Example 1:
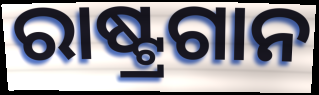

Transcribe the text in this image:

ରାଷ୍ଟ୍ରଗାନ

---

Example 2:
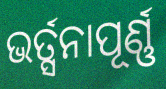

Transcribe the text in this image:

ଭର୍ତ୍ସନାପୂର୍ଣ୍ଣ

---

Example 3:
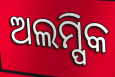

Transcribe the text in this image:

ଅଲମ୍ପିକ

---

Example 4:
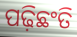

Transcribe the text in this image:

ପଢ଼ିଛଂତି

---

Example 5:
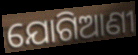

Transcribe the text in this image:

ଯୋଗିଆଣୀ